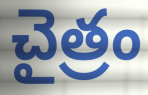
చైత్రం